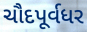
ચૌદપૂર્વધર